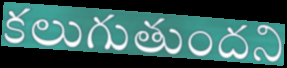
కలుగుతుందని